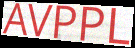
AVPPL